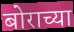
बोराच्या